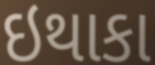
ઇથાકા